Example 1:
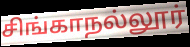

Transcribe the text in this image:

சிங்காநல்லூர்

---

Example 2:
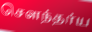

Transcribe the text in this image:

செளந்தர்ய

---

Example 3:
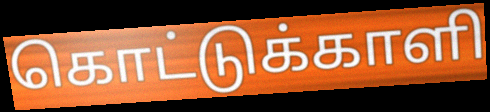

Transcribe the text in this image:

கொட்டுக்காளி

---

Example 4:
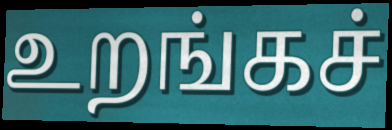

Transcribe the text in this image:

உறங்கச்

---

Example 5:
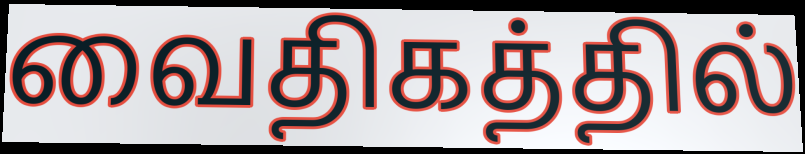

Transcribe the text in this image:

வைதிகத்தில்